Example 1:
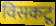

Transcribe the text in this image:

विसकटू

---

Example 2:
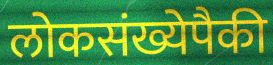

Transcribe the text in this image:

लोकसंख्येपैकी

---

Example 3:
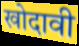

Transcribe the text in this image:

खोदावी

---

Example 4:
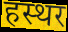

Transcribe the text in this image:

हस्थर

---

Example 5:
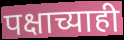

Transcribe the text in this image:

पक्षाच्याही